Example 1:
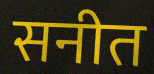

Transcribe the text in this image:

सनीत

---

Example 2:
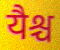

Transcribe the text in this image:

यैश्च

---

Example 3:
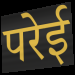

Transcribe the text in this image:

परेई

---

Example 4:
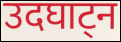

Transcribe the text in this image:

उदघाट्न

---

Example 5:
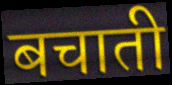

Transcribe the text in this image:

बचाती